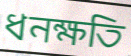
ধনক্ষতি